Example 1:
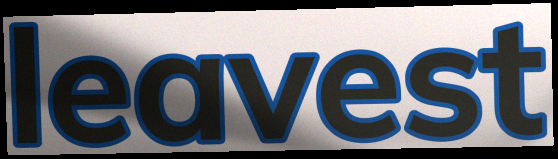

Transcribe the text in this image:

leavest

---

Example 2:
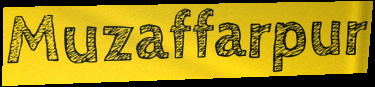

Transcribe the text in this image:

Muzaffarpur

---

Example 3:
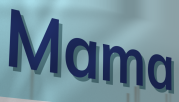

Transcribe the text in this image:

Mama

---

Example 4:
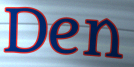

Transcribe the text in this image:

Den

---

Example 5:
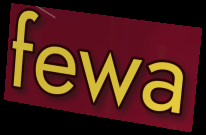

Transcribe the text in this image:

fewa